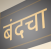
बंदचा